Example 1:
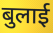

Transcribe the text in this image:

बुलाई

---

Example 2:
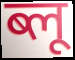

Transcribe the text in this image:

ब्लू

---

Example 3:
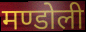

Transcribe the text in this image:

मण्डोली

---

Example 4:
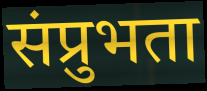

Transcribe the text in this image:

संप्रुभता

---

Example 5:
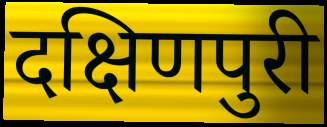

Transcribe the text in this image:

दक्षिणपुरी